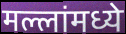
मल्लांमध्ये